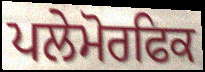
ਪਲੇਮੋਰਫਿਕ